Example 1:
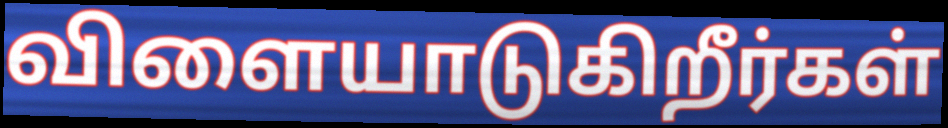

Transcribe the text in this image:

விளையாடுகிறீர்கள்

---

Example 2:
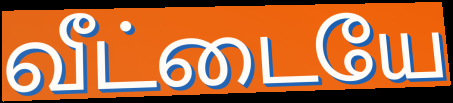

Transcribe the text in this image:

வீட்டையே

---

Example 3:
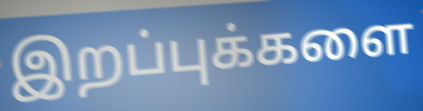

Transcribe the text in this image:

இறப்புக்களை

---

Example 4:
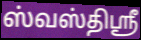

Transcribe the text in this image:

ஸ்வஸ்திஸ்ரீ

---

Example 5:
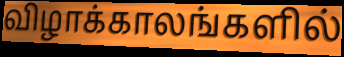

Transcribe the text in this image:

விழாக்காலங்களில்